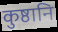
कुष्ठानि